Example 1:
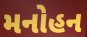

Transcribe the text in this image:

મનોહન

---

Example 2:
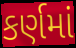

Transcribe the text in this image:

કર્ણમાં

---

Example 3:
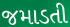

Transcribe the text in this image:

જમાડતી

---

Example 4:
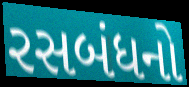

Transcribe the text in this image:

રસબંધનો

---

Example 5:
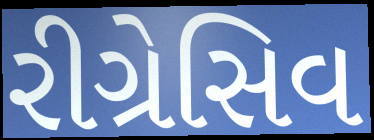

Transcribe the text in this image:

રીગ્રેસિવ